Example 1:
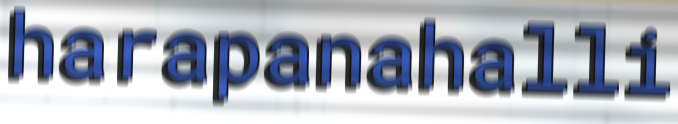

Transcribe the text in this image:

harapanahalli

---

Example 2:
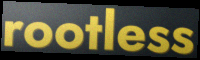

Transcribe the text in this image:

rootless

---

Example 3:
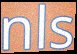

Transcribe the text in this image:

nls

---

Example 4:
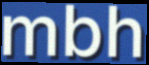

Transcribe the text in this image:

mbh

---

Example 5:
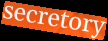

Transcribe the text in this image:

secretory